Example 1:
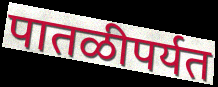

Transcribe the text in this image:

पातळीपर्यत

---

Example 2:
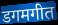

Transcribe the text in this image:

डगमगीत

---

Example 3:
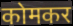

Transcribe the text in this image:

कोमकर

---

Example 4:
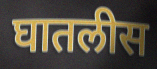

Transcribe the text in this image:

घातलीस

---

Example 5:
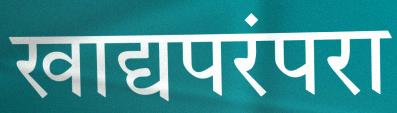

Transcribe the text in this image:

खाद्यपरंपरा